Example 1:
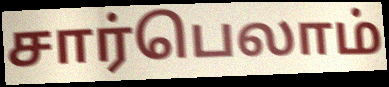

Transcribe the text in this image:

சார்பெலாம்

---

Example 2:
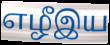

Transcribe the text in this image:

எழீஇய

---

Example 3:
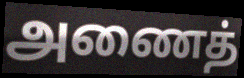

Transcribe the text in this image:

அணைத்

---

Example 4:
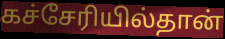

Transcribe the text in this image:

கச்சேரியில்தான்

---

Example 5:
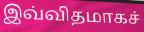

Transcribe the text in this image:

இவ்விதமாகச்